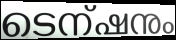
ടെന്ഷനും